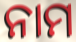
ନାମ